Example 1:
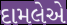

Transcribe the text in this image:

દામલેએ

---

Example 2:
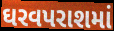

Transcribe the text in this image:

ઘરવપરાશમાં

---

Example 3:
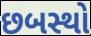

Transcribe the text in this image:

છબસ્થો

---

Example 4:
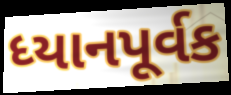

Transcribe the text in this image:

ધ્યાનપૂર્વક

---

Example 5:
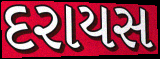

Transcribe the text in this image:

દરાયસ